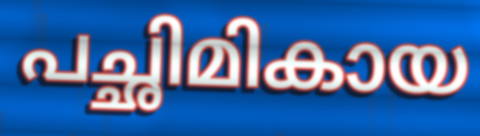
പച്ഛിമികായ